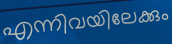
എന്നിവയിലേക്കും